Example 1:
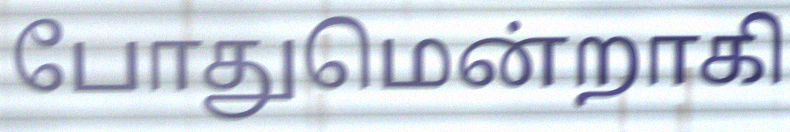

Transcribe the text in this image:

போதுமென்றாகி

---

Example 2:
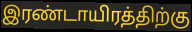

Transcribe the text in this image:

இரண்டாயிரத்திற்கு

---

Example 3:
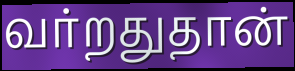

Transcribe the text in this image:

வர்றதுதான்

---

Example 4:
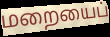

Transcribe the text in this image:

மறையைப்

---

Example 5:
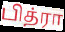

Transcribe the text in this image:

பித்ரா